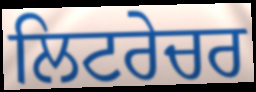
ਲਿਟਰੇਚਰ